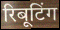
रिबूटिंग